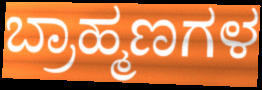
ಬ್ರಾಹ್ಮಣಗಳ